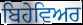
ਬਿਹੇਵਿਅਰ